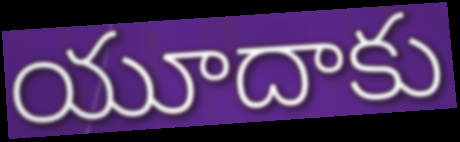
యూదాకు